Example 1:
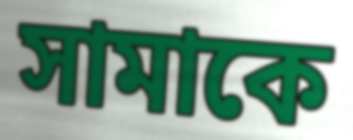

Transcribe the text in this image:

সামাকে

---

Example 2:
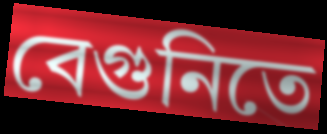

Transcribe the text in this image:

বেগুনিতে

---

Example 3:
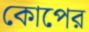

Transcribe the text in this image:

কোপের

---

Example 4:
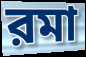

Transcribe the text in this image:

রমা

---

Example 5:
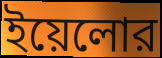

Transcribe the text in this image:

ইয়েলোর